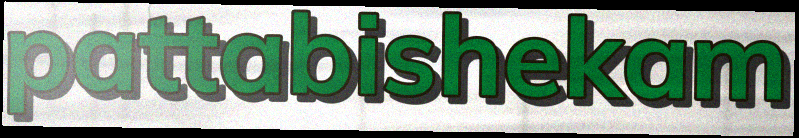
pattabishekam